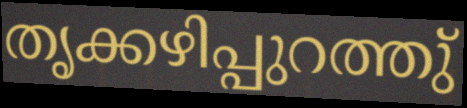
തൃക്കഴിപ്പുറത്തു്